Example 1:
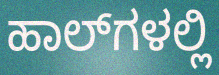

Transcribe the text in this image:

ಹಾಲ್‌ಗಳಲ್ಲಿ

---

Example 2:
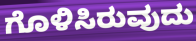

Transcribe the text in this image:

ಗೊಳಿಸಿರುವುದು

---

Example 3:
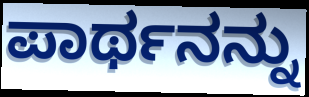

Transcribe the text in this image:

ಪಾರ್ಥನನ್ನು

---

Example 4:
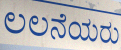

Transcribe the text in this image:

ಲಲನೆಯರು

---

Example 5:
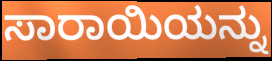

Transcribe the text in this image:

ಸಾರಾಯಿಯನ್ನು